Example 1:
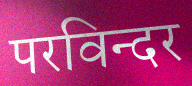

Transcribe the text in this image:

परविन्दर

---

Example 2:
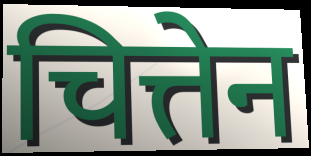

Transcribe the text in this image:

चित्तेन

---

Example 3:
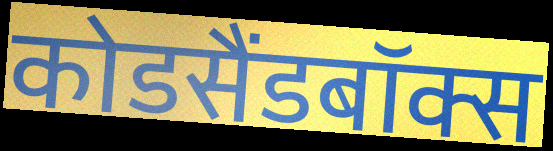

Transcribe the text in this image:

कोडसैंडबॉक्स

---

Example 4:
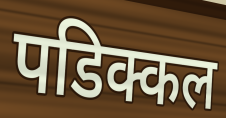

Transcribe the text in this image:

पडिक्कल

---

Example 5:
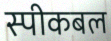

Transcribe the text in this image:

स्पीकबल